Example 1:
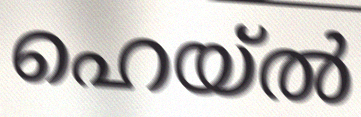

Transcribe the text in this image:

ഹെയ്ൽ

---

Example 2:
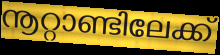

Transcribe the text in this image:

നൂറ്റാണ്ടിലേക്ക്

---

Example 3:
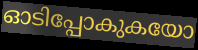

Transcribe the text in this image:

ഓടിപ്പോകുകയോ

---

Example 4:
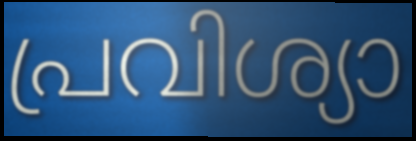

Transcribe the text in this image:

പ്രവിശ്യാ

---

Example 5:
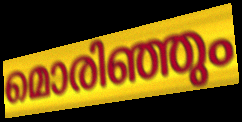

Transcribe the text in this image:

മൊരിഞ്ഞും